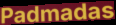
Padmadas